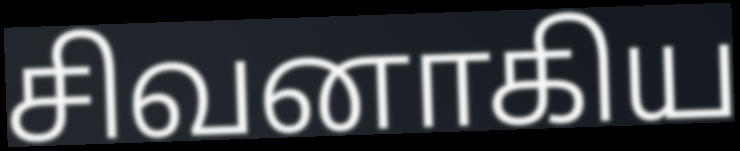
சிவனாகிய